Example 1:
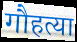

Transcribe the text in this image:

गौहत्या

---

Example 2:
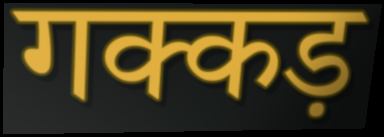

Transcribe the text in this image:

गक्कड़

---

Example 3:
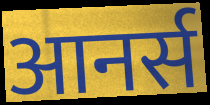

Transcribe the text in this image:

आनर्स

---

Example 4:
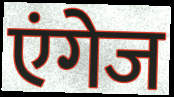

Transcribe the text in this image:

एंगेज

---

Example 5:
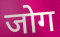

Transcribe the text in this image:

जोग